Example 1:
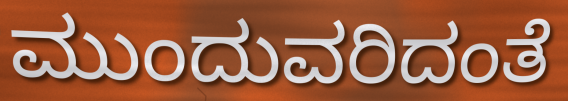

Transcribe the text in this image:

ಮುಂದುವರಿದಂತೆ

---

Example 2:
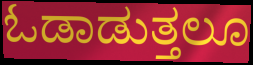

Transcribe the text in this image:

ಓಡಾಡುತ್ತಲೂ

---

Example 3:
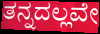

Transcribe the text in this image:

ತನ್ನದಲ್ಲವೇ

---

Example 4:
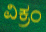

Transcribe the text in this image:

ವಿಕ್ರಂ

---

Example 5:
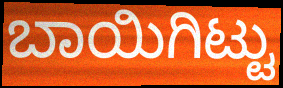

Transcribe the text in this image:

ಬಾಯಿಗಿಟ್ಟು